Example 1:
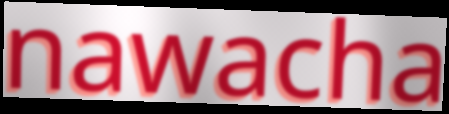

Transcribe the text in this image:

nawacha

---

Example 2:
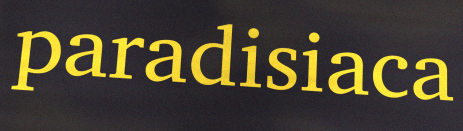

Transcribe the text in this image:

paradisiaca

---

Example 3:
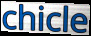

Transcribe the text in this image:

chicle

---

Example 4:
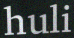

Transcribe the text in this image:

huli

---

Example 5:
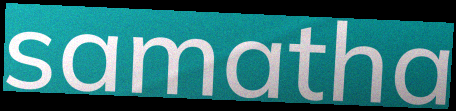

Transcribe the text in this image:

samatha